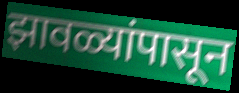
झावळ्यांपासून